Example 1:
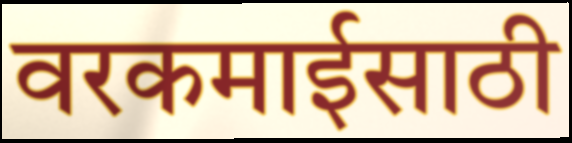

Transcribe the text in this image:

वरकमाईसाठी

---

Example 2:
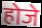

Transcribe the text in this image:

होजे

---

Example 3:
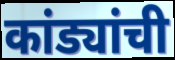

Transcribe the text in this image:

कांड्यांची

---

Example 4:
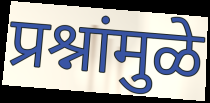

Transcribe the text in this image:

प्रश्नांमुळे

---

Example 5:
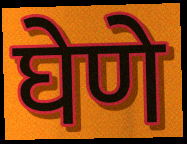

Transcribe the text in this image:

घेणे